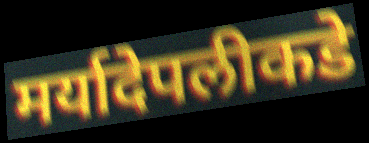
मर्यादेपलीकडे